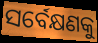
ସର୍ବେକ୍ଷଣକୁ